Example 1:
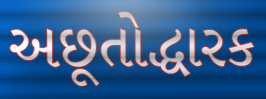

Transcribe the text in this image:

અછૂતોદ્ધારક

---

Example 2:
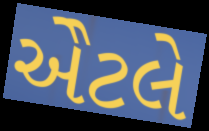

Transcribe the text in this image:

એેટલે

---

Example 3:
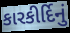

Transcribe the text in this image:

કારકીર્દિનું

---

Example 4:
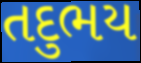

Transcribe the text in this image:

તદુભય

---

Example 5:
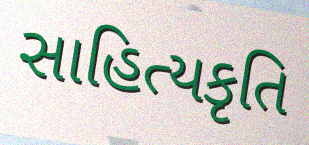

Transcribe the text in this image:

સાહિત્યકૃતિ